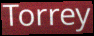
Torrey